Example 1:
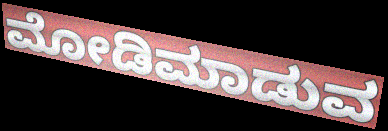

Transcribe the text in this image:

ಮೋಡಿಮಾಡುವ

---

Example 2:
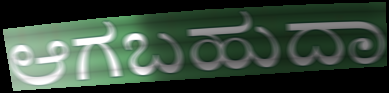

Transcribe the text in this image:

ಆಗಬಹುದಾ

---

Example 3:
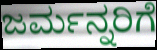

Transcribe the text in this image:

ಜರ್ಮನ್ನರಿಗೆ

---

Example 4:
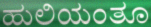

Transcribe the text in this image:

ಹುಲಿಯಂತೂ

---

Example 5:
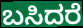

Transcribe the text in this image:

ಬಸಿದರೆ